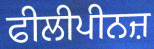
ਫੀਲੀਪੀਨਜ਼